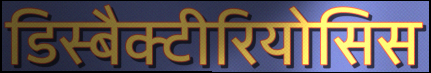
डिस्बैक्टीरियोसिस